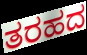
ತರಹದ